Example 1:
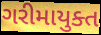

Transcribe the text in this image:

ગરીમાયુક્ત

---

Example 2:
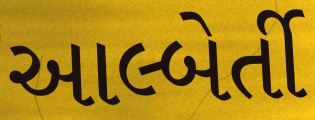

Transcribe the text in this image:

આલ્બેર્તી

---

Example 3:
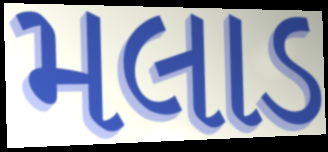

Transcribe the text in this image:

મલાડ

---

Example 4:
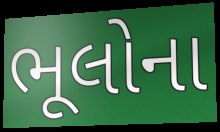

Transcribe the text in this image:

ભૂલોના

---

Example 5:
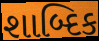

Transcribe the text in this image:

શાબ્દિક